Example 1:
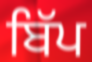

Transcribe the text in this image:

ਬਿੱਪ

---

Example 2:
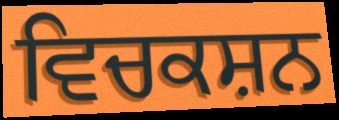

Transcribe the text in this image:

ਵਿਚਕਸ਼ਨ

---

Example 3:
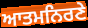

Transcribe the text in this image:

ਆਤਮਨਿਰਣੇ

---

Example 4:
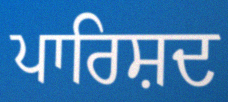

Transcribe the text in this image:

ਪਾਰਿਸ਼ਦ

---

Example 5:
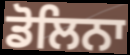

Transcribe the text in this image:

ਡੋਲਿਨਾ